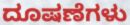
ದೂಷಣೆಗಳು